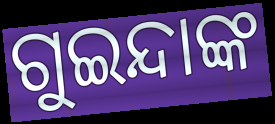
ଗୁଇନ୍ଦାଙ୍କ